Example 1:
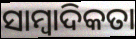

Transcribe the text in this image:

ସାମ୍ୱାଦିକତା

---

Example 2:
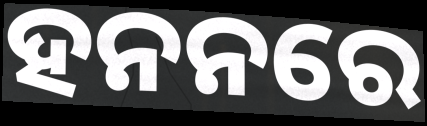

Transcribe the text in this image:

ହନନରେ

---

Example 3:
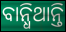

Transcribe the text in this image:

ବାନ୍ଧିଥାନ୍ତି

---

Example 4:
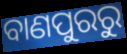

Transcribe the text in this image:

ବାଣପୁରରୁ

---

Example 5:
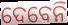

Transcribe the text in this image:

ଦେବେନି